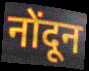
नोंदून